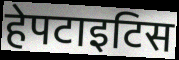
हेपटाइटिस